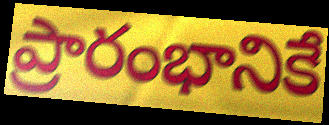
ప్రారంభానికే